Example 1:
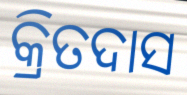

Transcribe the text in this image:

କ୍ରିତଦାସ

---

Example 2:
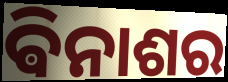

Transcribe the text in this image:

ଵିନାଶର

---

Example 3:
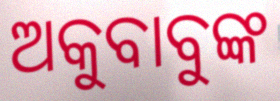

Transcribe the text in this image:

ଅକୁବାବୁଙ୍କ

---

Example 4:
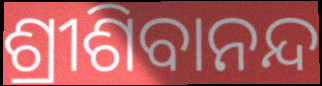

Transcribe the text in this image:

ଶ୍ରୀଶିବାନନ୍ଦ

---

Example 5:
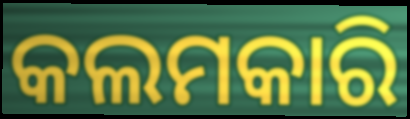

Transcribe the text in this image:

କଲମକାରି